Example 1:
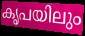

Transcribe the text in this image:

കൃപയിലും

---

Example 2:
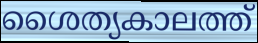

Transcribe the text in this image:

ശൈത്യകാലത്ത്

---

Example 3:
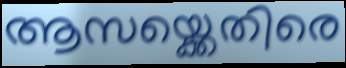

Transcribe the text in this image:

ആസയ്ക്കെതിരെ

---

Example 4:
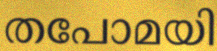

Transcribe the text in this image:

തപോമയി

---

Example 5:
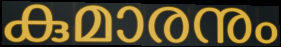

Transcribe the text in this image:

കുമാരനും